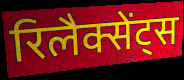
रिलैक्सेंट्स